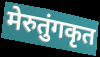
मेरुतुंगकृत